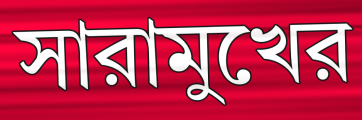
সারামুখের